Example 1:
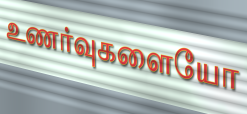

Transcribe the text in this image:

உணர்வுகளையோ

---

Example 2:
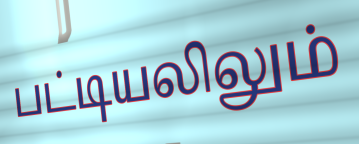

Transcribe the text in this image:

பட்டியலிலும்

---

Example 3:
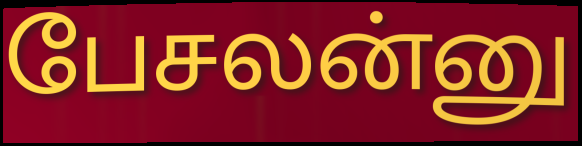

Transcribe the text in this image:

பேசலன்னு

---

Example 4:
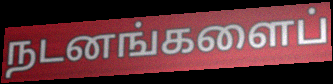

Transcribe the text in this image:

நடனங்களைப்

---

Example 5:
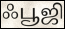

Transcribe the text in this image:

ஃபூஜி